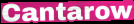
Cantarow